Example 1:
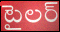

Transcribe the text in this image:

టైలర్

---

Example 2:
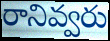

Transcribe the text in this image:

రానివ్వరు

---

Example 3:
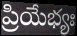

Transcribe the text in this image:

ప్రియేభ్యః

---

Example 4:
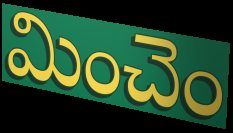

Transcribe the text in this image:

మించెం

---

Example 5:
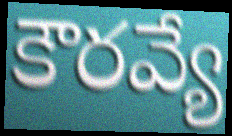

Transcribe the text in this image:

కౌరవ్యే